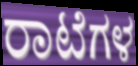
ರಾಟೆಗಳ